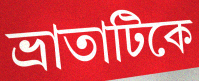
ভ্রাতাটিকে